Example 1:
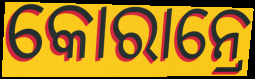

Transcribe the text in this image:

କୋରାନ୍ରେ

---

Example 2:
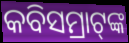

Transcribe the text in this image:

କବିସମ୍ରାଟ୍‌ଙ୍କ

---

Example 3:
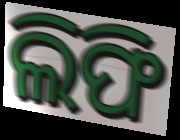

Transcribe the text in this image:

ଲିଫି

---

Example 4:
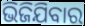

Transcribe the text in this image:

ଭିଜିଯିବାର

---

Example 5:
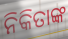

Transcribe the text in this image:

ନିକିତାଙ୍କ